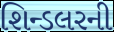
શિન્ડલરની